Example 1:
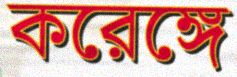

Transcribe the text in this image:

করেঙ্গে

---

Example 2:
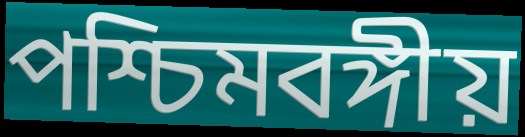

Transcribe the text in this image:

পশ্চিমবঙ্গীয়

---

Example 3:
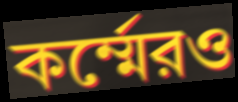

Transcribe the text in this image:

কর্ম্মেরও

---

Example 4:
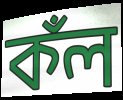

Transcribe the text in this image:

কঁল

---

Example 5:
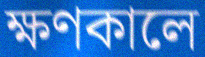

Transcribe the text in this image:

ক্ষণকালে